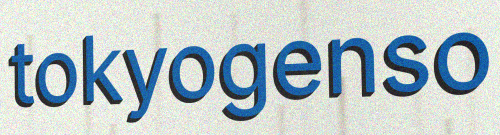
tokyogenso